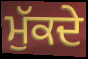
ਮੁੱਕਦੇ